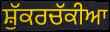
ਸ਼ੁੱਕਰਚੱਕੀਆ